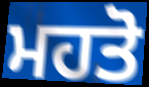
ਮਹਤੋ